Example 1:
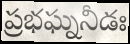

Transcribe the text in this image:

ప్రభఘ్ననీడః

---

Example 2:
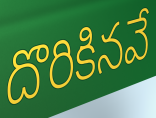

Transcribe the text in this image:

దొరికినవే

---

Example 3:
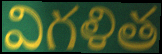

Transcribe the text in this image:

విగళిత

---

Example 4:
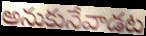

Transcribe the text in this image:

అనుకునేవాడట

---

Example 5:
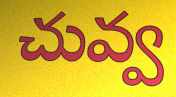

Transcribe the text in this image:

చువ్వ